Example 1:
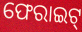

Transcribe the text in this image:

ଫେରାଇଟ୍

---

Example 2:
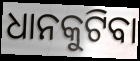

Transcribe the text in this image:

ଧାନକୁଟିବା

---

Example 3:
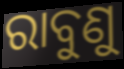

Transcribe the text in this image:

ରାବୁଣୁ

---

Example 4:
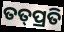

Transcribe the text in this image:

ତତ୍‌ପ୍ରତି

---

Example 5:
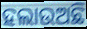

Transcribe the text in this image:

ହଲାଉଅଛି